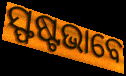
ସ୍ଫଷ୍ଟଭାବେ